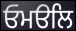
ਓਮੳਲਿ